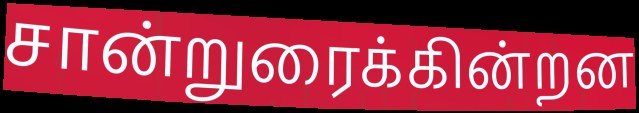
சான்றுரைக்கின்றன